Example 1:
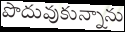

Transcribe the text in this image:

పొదువుకున్నాను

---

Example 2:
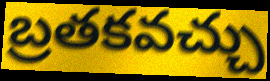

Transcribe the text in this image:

బ్రతకవచ్చు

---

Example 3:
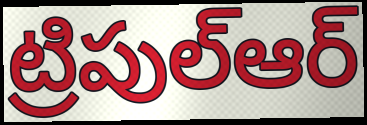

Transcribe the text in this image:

ట్రిపుల్ఆర్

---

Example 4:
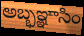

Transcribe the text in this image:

అబ్భఞ్ఞాసిం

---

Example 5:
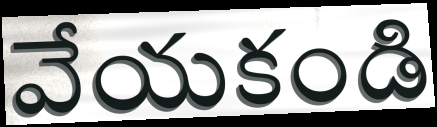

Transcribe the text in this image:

వేయకండి